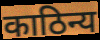
काठिन्य